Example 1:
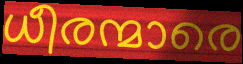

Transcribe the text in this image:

ധീരന്മാരെ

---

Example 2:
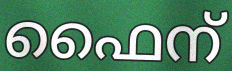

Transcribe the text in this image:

ഫൈന്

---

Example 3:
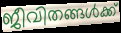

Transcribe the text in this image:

ജീവിതങ്ങൾക്ക്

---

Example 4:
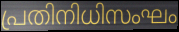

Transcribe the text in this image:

പ്രതിനിധിസംഘം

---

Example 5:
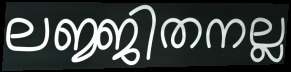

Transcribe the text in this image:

ലജ്ജിതനല്ല